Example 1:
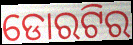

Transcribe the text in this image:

ଡୋରଟିର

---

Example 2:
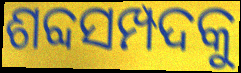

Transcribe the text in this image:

ଶବ୍ଦସମ୍ପଦକୁ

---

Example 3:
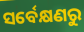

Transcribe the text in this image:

ସର୍ବେକ୍ଷଣରୁ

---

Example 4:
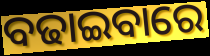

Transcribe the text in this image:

ବଢାଇବାରେ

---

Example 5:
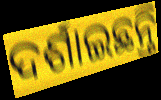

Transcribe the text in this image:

ଦର୍ଶାଇଛନ୍ତି